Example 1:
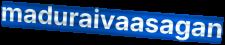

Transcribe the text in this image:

maduraivaasagan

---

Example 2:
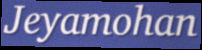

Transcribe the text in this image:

Jeyamohan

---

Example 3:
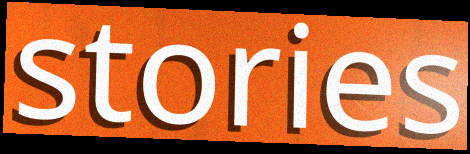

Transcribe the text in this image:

stories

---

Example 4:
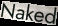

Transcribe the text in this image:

Naked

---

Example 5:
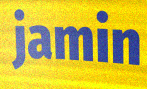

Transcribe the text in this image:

jamin